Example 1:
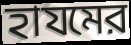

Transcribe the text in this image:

হাযমের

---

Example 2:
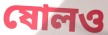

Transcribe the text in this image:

ষোলও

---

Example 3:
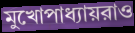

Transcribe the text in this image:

মুখোপাধ্যায়রাও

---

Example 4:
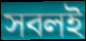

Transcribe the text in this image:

সবলই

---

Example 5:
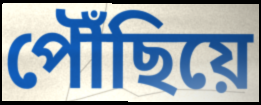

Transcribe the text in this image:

পৌঁছিয়ে